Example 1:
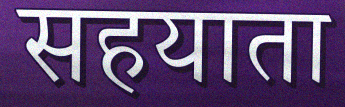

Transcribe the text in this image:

सहयाता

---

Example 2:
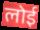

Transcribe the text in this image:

लोई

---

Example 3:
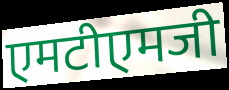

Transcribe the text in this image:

एमटीएमजी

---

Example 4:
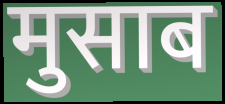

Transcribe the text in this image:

मुसाब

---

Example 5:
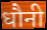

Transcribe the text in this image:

धौनी